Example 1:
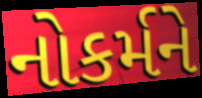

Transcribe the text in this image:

નોકર્મને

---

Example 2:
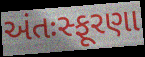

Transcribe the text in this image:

અંતઃસ્ફૂરણા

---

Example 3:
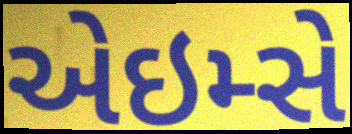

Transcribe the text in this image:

એઇમ્સે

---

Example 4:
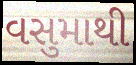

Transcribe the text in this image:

વસુમાથી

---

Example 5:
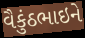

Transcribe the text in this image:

વૈકુંઠભાઇને